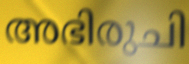
അഭിരുചി